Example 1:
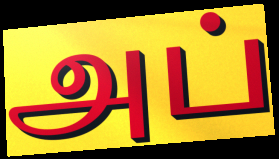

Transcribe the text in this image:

அப்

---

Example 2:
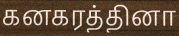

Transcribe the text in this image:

கனகரத்தினா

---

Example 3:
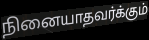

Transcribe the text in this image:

நினையாதவர்க்கும்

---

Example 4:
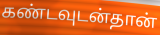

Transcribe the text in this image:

கண்டவுடன்தான்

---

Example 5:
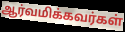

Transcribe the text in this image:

ஆர்வமிக்கவர்கள்